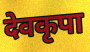
देवकृपा